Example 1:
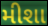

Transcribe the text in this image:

મીશા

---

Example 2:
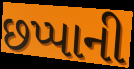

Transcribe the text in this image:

છપ્પાની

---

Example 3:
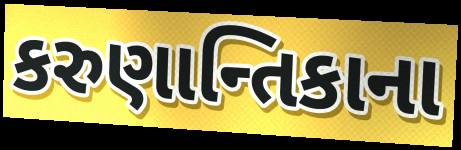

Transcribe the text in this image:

કરુણાન્તિકાના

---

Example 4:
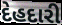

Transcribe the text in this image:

દેહદારી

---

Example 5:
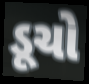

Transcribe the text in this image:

ડૂચો